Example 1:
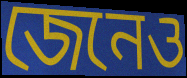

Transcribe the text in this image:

জেনেও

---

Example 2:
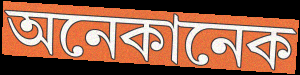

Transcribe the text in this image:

অনেকানেক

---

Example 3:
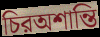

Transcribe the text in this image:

চিরঅশান্তি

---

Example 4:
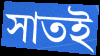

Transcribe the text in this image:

সাতই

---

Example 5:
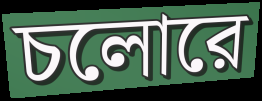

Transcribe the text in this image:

চলোরে